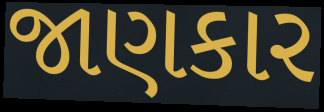
જાણકાર